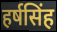
हर्षसिंह